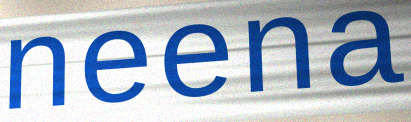
neena